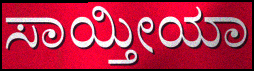
ಸಾಯ್ತೀಯಾ